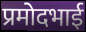
प्रमोदभाई